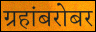
ग्रहांबरोबर